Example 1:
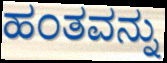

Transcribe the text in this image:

ಹಂತವನ್ನು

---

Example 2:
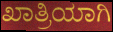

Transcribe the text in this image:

ಖಾತ್ರಿಯಾಗಿ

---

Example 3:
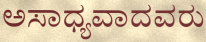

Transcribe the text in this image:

ಅಸಾಧ್ಯವಾದವರು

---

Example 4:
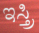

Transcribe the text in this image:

ಇಸ್ತ್ರಿ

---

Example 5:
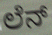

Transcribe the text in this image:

ಲೆನ್